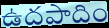
ఉదపాదిం